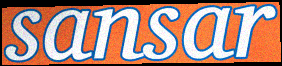
sansar